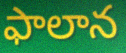
ఫాలాన